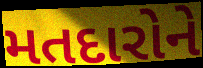
મતદારોને